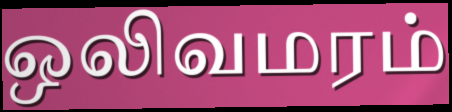
ஒலிவமரம்